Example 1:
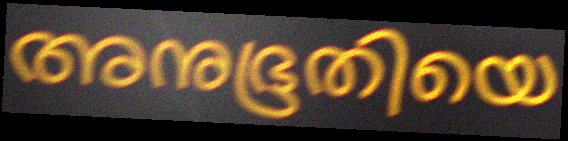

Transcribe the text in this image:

അനുഭൂതിയെ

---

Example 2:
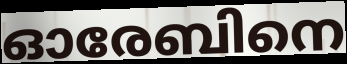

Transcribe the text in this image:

ഓരേബിനെ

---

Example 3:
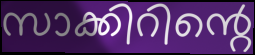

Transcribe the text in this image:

സാക്കിറിന്റെ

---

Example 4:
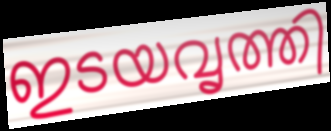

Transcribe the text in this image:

ഇടയവൃത്തി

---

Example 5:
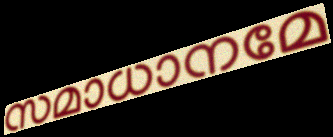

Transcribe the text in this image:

സമാധാനമേ